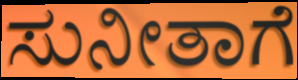
ಸುನೀತಾಗೆ